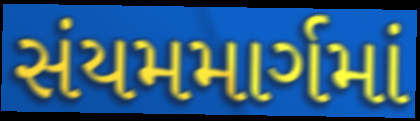
સંયમમાર્ગમાં